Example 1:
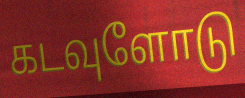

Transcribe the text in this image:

கடவுளோடு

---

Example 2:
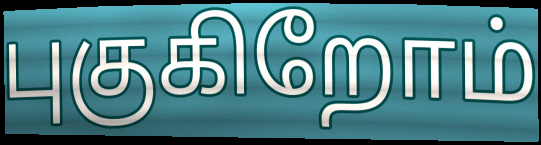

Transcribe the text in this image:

புகுகிறோம்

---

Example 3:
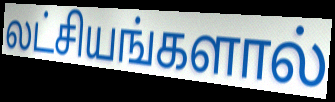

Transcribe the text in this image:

லட்சியங்களால்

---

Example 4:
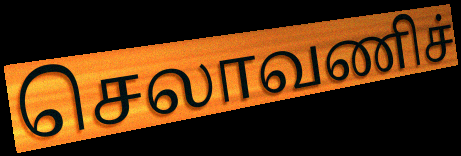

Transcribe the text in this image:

செலாவணிச்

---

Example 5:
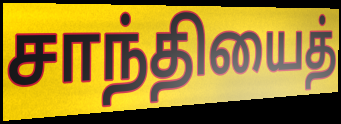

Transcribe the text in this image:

சாந்தியைத்